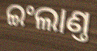
ଇଂଲାଣ୍ତ